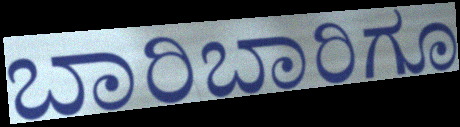
ಬಾರಿಬಾರಿಗೂ